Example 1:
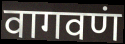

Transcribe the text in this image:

वागवणं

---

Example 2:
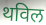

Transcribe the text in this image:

थविल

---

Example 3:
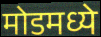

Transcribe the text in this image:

मोडमध्ये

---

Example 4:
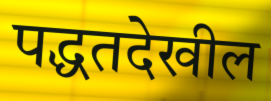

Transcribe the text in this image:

पद्धतदेखील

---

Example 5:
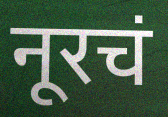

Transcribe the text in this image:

नूरचं